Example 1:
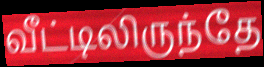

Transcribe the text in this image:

வீட்டிலிருந்தே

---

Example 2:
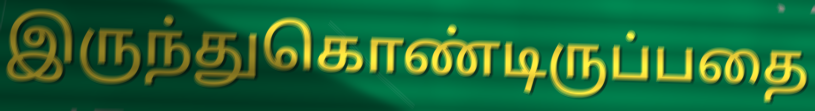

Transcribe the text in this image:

இருந்துகொண்டிருப்பதை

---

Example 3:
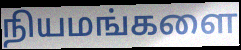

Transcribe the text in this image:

நியமங்களை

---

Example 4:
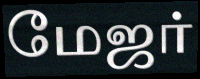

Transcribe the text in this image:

மேஜர்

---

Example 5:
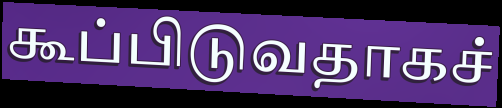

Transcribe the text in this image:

கூப்பிடுவதாகச்